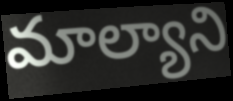
మాల్యాని